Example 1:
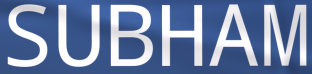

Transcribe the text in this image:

SUBHAM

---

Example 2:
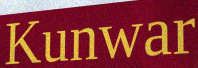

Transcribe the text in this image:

Kunwar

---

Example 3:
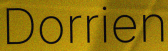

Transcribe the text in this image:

Dorrien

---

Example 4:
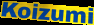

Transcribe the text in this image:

Koizumi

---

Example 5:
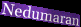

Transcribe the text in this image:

Nedumaran